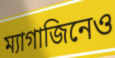
ম্যাগাজিনেও